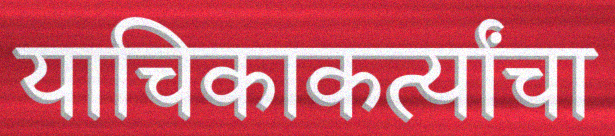
याचिकाकर्त्यांचा